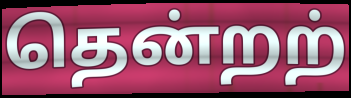
தென்றற்